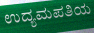
ಉದ್ಯಮಪತಿಯ